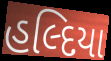
હલ્દિયા